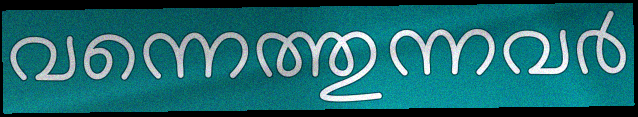
വന്നെത്തുന്നവർ